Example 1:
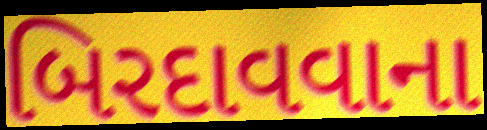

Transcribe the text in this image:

બિરદાવવાના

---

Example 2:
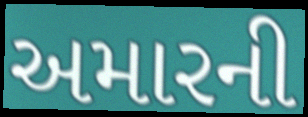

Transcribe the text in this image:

અમારની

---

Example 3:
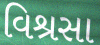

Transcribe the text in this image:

વિશ્રસા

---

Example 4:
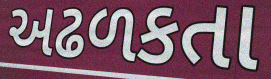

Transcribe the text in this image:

અઢળકતા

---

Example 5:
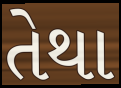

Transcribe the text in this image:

તેથા